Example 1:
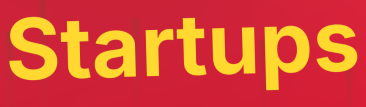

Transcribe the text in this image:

Startups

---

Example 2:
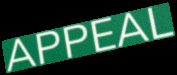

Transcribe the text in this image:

APPEAL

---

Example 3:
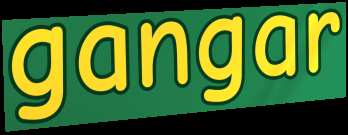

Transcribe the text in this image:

gangar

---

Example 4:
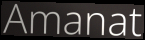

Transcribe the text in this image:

Amanat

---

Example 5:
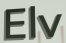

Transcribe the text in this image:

Elv